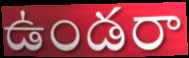
ఉండరా